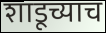
शाडूच्याच